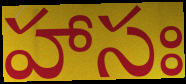
హాసః